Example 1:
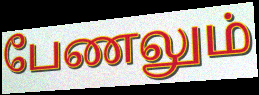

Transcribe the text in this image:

பேணலும்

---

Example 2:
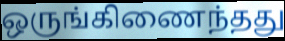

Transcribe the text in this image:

ஒருங்கிணைந்தது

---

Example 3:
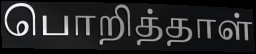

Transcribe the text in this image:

பொறித்தாள்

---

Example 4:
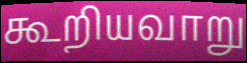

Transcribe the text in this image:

கூறியவாறு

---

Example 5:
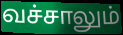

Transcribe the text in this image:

வச்சாலும்